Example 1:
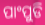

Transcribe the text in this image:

ପାଂପୁଡି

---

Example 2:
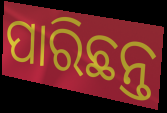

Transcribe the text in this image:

ପାରିଛନ୍ତ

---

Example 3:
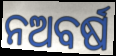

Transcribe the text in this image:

ନଅବର୍ଷ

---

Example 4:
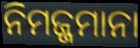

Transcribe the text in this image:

ନିମଜ୍ଜମାନା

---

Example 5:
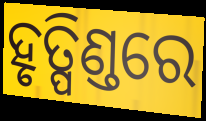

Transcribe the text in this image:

ହୃତ୍ପିଣ୍ଡରେ